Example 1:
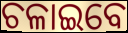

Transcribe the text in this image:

ଚଳାଇବେ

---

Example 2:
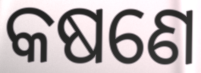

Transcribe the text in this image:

କଷଣେ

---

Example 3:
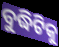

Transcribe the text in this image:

ବୁଦ୍ଧିଟିକୁ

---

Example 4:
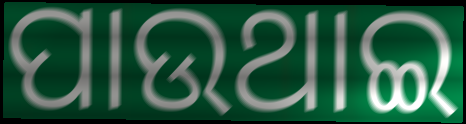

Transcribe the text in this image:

ପାଉଥାଇ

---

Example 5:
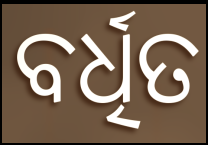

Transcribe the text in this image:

ବର୍ଧିତ